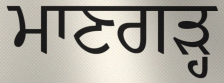
ਮਾਣਗੜ੍ਹ